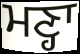
ਮਣ੍ਹਾ